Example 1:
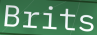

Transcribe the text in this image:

Brits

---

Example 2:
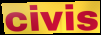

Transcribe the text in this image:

civis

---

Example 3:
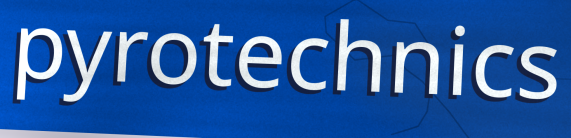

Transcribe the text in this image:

pyrotechnics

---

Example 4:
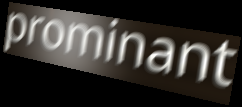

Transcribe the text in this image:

prominant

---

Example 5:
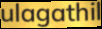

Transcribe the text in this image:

ulagathil